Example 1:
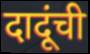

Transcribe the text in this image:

दादूंची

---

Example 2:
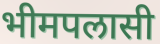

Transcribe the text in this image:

भीमपलासी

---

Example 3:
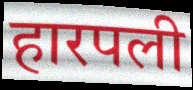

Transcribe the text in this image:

हारपली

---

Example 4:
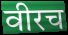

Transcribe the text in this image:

वीरच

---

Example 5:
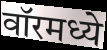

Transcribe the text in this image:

वॉरमध्ये